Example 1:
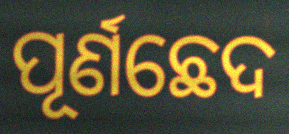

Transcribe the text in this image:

ପୂର୍ଣଛେଦ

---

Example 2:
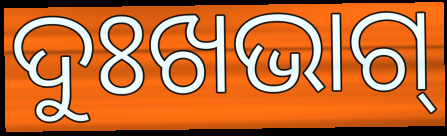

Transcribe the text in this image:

ଦୁଃଖଭାଗ୍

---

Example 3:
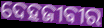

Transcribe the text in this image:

ଦେହଜୀବୀର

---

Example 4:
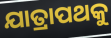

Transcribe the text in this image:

ଯାତ୍ରାପଥକୁ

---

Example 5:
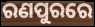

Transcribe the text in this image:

ରଣପୁରରେ